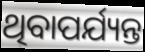
ଥିବାପର୍ଯ୍ୟନ୍ତ